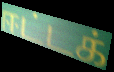
ஈட்டக்